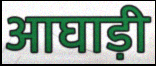
आघाड़ी